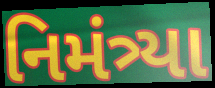
નિમંત્ર્યા